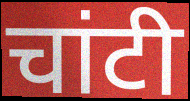
चांटी